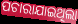
ପଚାରାଯାଇଥିଲା